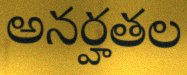
అనర్హతల